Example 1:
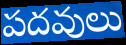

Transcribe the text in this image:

పదవులు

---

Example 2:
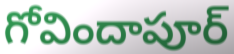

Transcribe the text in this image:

గోవిందాపూర్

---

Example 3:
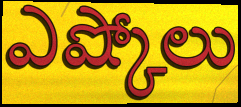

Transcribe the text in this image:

ఎష్కోలు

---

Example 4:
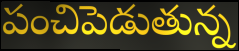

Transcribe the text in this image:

పంచిపెడుతున్న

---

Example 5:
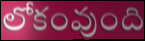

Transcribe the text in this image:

లోకంవుంది